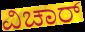
ವಿಚಾರ್